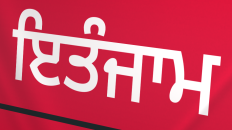
ਇਤੰਜਾਮ